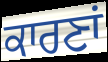
ਕਾਰਣਾਂ